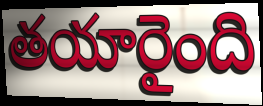
తయారైంది